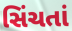
સિંચતાં